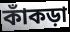
কাঁকড়া